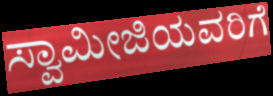
ಸ್ವಾಮೀಜಿಯವರಿಗೆ